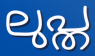
ലുപ്ത